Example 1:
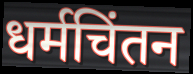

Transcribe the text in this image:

धर्मचिंतन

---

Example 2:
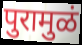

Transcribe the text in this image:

पुरामुळं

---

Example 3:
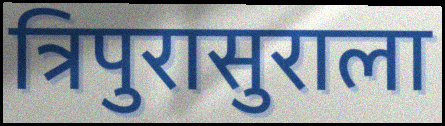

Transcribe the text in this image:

त्रिपुरासुराला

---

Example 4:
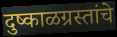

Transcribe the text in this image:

दुष्काळग्रस्तांचे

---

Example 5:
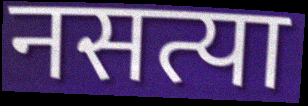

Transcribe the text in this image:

नसत्या